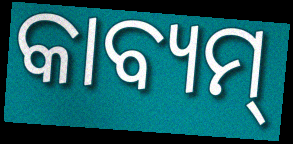
କାବ୍ୟମ୍